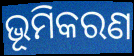
ଭୂମିକରଣ